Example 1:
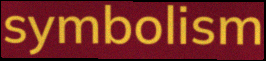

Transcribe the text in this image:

symbolism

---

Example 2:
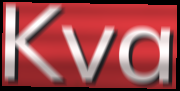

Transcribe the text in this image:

Kva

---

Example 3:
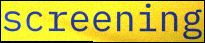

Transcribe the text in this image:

screening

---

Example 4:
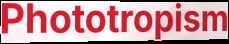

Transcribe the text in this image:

Phototropism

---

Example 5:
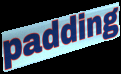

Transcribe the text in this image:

padding